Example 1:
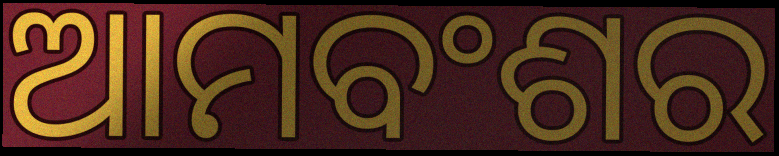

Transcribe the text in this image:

ଆମବଂଶର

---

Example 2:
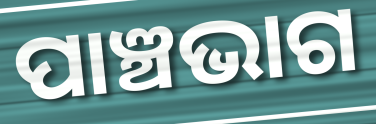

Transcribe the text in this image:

ପାଞ୍ଚଭାଗ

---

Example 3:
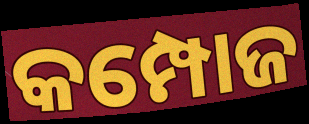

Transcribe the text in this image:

କମ୍ପୋଜ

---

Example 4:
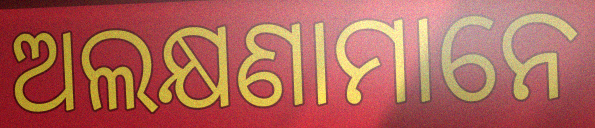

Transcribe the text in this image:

ଅଲକ୍ଷଣାମାନେ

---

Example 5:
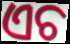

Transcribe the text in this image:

ଏଚ